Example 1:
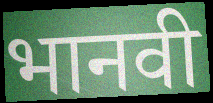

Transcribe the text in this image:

भानवी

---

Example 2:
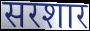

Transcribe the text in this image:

सरशार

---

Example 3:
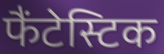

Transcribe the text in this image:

फैंटेस्टिक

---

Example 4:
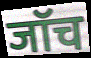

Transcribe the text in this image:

जॉच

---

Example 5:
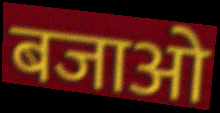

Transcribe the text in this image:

बजाओ